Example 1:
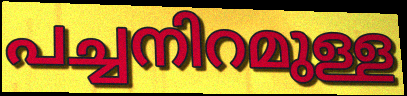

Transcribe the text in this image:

പച്ചനിറമുള്ള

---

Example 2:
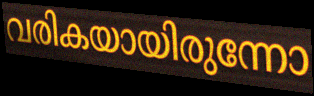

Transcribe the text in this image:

വരികയായിരുന്നോ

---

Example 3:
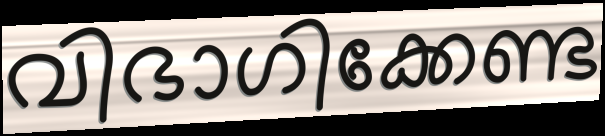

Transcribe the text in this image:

വിഭാഗിക്കേണ്ട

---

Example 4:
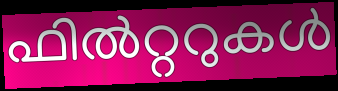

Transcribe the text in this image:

ഫിൽറ്ററുകൾ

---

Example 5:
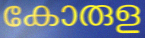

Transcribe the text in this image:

കോരുള